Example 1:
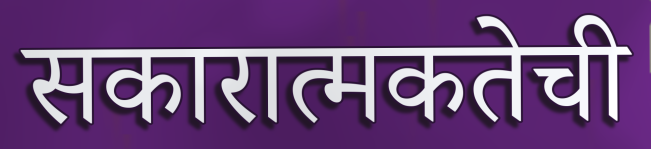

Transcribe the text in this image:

सकारात्मकतेची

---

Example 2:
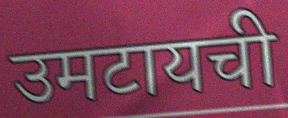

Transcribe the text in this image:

उमटायची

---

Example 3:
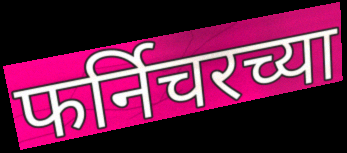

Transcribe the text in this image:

फर्निचरच्या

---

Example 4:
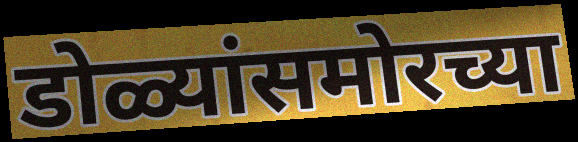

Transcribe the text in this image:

डोळ्यांसमोरच्या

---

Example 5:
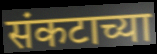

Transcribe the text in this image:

संकटाच्या